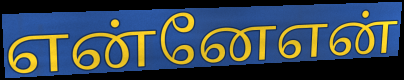
என்னேஎன்